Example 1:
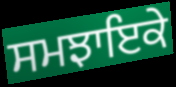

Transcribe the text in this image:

ਸਮਝਾਇਕੇ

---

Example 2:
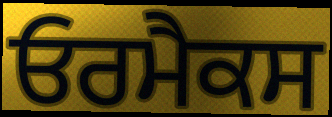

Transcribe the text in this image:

ਓਰਮੈਕਸ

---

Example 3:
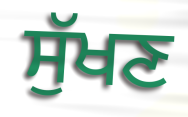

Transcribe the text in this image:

ਸੁੱਖਣ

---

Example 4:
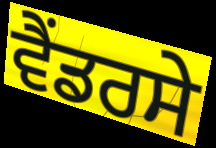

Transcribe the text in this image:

ਵੈਂਡਰਸੇ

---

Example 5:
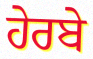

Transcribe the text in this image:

ਹੇਰਬੇ